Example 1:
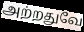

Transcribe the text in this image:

அற்றதுவே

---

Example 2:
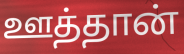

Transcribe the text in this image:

ஊத்தான்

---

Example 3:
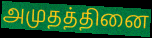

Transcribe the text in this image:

அமுதத்தினை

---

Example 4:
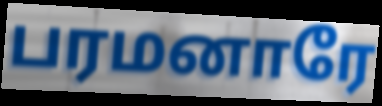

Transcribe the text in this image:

பரமனாரே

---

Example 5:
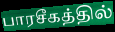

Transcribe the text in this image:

பாரசீகத்தில்